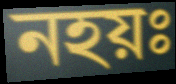
নহয়ঃ